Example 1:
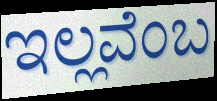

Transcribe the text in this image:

ಇಲ್ಲವೆಂಬ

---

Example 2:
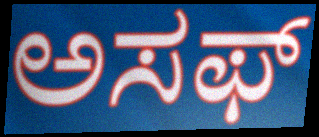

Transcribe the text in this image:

ಅಸಫ್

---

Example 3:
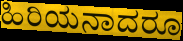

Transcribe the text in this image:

ಹಿರಿಯನಾದರೂ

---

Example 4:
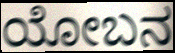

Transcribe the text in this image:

ಯೋಬನ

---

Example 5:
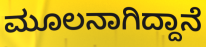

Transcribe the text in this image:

ಮೂಲನಾಗಿದ್ದಾನೆ